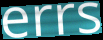
errs